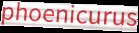
phoenicurus